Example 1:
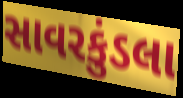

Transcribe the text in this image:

સાવરકુંડલા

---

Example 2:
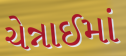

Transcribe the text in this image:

ચેન્નાઈમાં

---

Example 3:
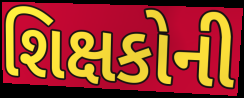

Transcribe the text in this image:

શિક્ષકોની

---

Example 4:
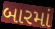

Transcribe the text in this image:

બારમાં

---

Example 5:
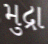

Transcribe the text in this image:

મુદ્રા